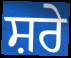
ਸ਼ਰੇ